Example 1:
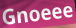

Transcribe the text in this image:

Gnoeee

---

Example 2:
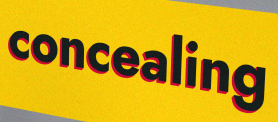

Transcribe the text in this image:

concealing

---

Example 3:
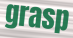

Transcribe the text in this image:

grasp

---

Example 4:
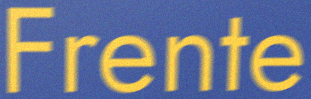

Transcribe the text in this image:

Frente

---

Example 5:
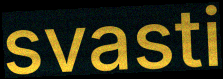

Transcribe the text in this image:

svasti